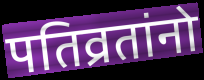
पतिव्रतांनो